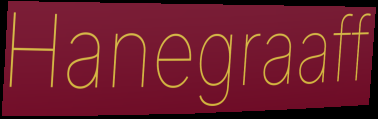
Hanegraaff